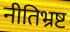
नीतिभ्रष्ट